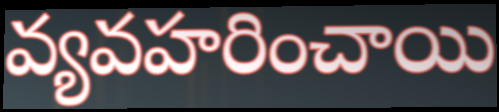
వ్యవహరించాయి